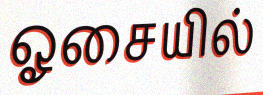
ஓசையில்